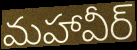
మహావీర్